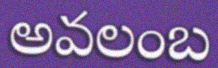
అవలంబ